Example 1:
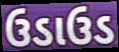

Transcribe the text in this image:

ઉડાઉડ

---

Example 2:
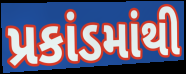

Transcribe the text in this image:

પ્રકાંડમાંથી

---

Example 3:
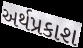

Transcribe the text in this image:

અર્થપ્રકાશ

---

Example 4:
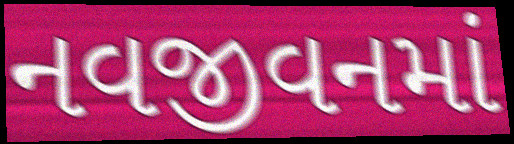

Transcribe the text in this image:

નવજીવનમાં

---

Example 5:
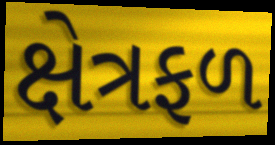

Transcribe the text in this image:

ક્ષેત્રફળ